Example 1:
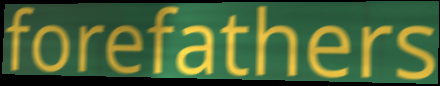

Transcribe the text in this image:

forefathers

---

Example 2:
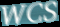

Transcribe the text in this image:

WCS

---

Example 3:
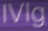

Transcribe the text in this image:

IVIg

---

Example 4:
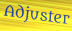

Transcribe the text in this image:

Adjuster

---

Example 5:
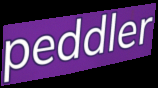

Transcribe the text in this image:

peddler